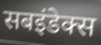
सबइंडेक्स